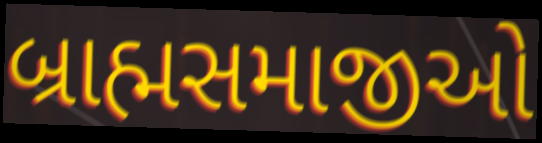
બ્રાહ્મસમાજીઓ